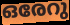
ഒരേറു